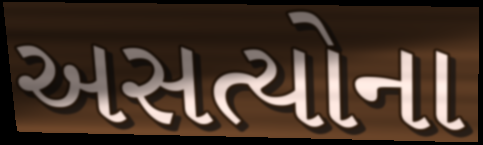
અસત્યોના